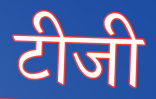
टीजी